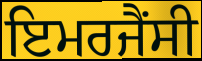
ਇਮਰਜੈਂਸੀ